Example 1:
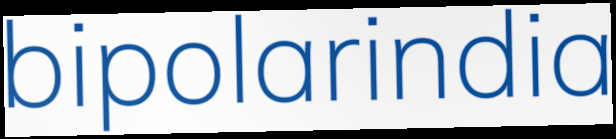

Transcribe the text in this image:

bipolarindia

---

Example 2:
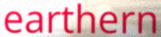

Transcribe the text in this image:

earthern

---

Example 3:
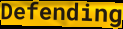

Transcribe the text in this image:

Defending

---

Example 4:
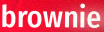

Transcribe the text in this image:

brownie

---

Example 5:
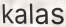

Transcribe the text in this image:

kalas